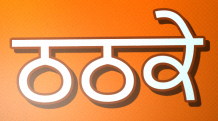
ਠਠਕੇ